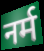
नर्म